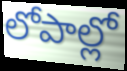
లోపాల్లో